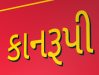
કાનરૂપી